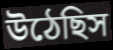
উঠেছিস